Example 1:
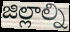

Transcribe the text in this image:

జిల్లాల్ని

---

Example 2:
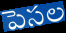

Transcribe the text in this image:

పెసల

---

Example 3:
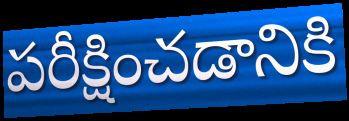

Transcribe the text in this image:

పరీక్షించడానికి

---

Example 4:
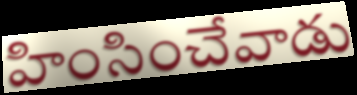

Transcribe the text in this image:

హింసించేవాడు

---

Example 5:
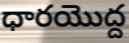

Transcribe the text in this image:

ధారయొద్ద